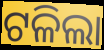
ଟଳିଲା